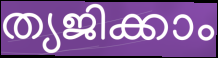
ത്യജിക്കാം